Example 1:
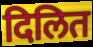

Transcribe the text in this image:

दिलित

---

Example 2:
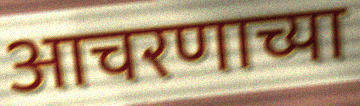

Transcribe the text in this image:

आचरणाच्या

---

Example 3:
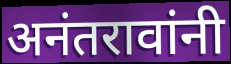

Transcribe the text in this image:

अनंतरावांनी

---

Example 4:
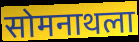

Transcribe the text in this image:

सोमनाथला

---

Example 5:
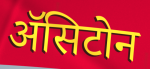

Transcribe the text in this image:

ॲसिटोन